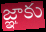
జ్ఞాకు